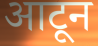
आटून